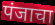
पंजाचा